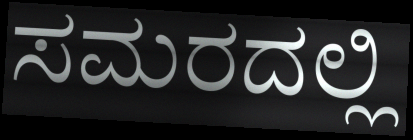
ಸಮರದಲ್ಲಿ